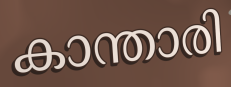
കാന്താരി